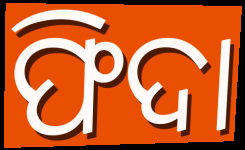
ଫିଦା